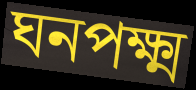
ঘনপক্ষ্ম